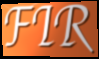
FIR